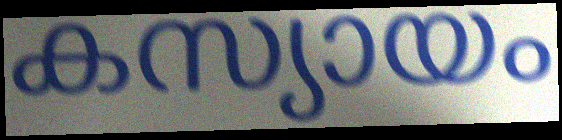
കസ്യായം